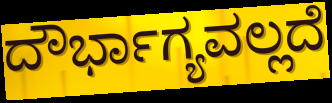
ದೌರ್ಭಾಗ್ಯವಲ್ಲದೆ